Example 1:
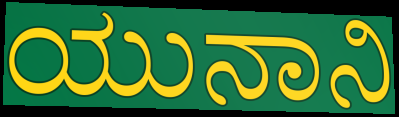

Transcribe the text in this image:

ಯುನಾನಿ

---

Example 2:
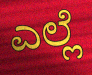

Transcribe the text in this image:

ಎಲ್ಲೆ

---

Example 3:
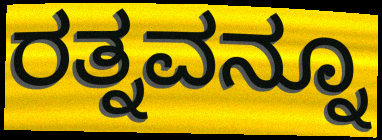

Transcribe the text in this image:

ರತ್ನವನ್ನೂ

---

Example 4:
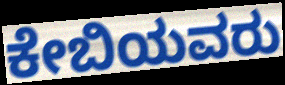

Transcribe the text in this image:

ಕೇಬಿಯವರು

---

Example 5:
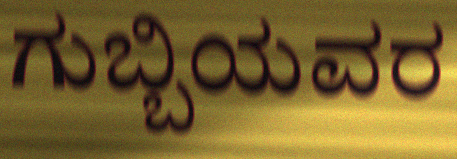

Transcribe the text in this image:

ಗುಬ್ಬಿಯವರ